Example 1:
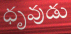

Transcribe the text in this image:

ధృవుడు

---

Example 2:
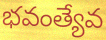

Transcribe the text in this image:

భవంత్యేవ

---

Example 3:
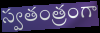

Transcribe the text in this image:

స్వతంత్రంగా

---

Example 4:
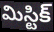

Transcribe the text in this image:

మిస్టిక్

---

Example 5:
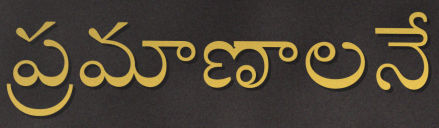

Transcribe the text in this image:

ప్రమాణాలనే